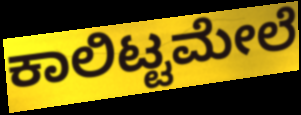
ಕಾಲಿಟ್ಟಮೇಲೆ